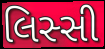
લિસ્સી